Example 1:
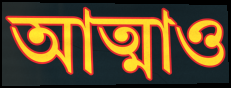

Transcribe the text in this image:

আত্মাও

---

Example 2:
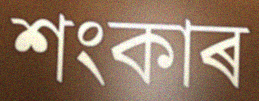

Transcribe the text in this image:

শংকাৰ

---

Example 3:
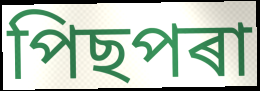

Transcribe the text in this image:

পিছপৰা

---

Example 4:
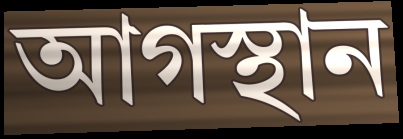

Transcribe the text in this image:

আগস্থান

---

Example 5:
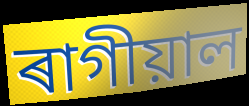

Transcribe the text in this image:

ৰাগীয়াল